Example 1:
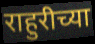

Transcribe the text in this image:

राहुरीच्या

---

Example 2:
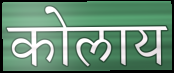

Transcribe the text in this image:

कोलाय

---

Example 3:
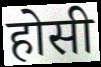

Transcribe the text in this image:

होसी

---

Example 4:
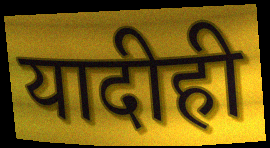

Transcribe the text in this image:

यादीही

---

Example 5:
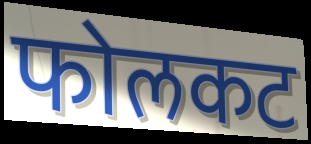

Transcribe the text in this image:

फोलकट